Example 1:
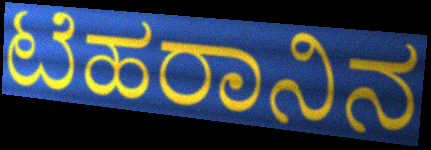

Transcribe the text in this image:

ಟೆಹರಾನಿನ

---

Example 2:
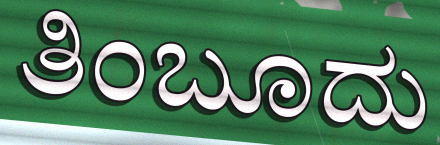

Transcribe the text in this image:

ತಿಂಬೂದು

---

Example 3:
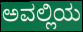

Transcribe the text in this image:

ಅವಲ್ಲಿಯ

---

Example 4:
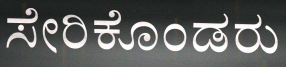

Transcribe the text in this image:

ಸೇರಿಕೊಂಡರು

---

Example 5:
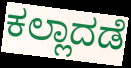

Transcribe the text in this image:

ಕಲ್ಲಾದಡೆ